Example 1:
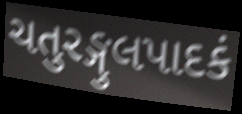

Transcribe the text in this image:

ચતુરઙ્ગુલપાદકં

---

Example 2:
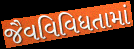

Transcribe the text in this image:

જૈવવિવિધતામાં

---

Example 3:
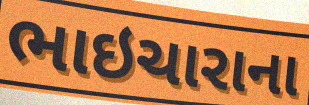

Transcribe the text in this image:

ભાઇચારાના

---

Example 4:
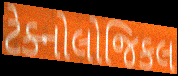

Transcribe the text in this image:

ટેક્નોલોજિકલ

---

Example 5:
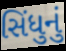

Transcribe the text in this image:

સિંધુનું